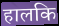
हालकि